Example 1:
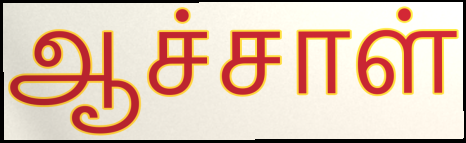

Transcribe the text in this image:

ஆச்சாள்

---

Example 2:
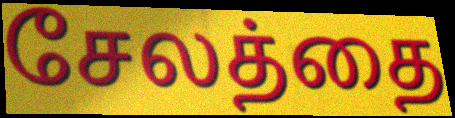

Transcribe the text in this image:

சேலத்தை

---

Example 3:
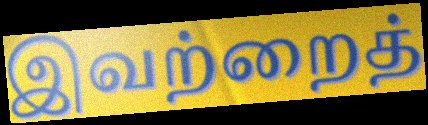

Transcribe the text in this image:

இவற்றைத்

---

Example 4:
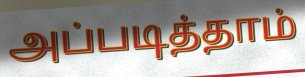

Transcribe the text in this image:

அப்படித்தாம்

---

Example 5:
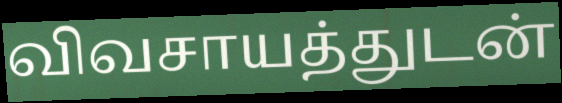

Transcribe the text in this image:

விவசாயத்துடன்